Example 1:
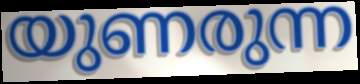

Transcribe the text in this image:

യുണരുന്ന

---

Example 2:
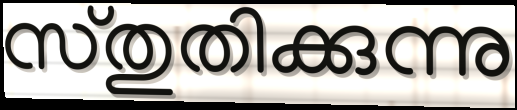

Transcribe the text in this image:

സ്തുതിക്കുന്നു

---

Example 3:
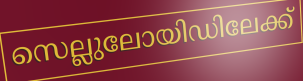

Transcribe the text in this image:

സെല്ലുലോയിഡിലേക്ക്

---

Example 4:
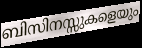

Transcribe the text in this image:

ബിസിനസ്സുകളെയും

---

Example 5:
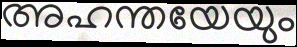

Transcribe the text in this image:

അഹന്തയേയും